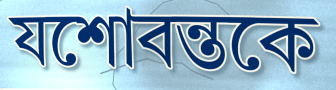
যশোবন্তকে